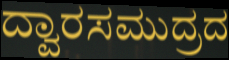
ದ್ವಾರಸಮುದ್ರದ